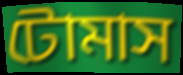
টোমাস